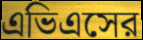
এভিএসের